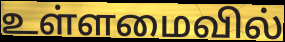
உள்ளமைவில்